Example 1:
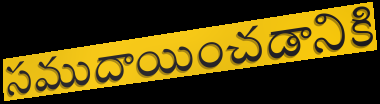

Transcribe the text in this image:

సముదాయించడానికి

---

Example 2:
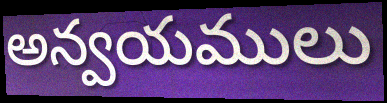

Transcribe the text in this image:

అన్వయములు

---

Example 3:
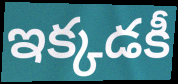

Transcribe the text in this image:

ఇక్కడకీ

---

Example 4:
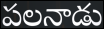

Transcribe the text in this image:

పలనాడు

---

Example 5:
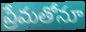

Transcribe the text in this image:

ప్రేమతోనూ